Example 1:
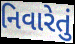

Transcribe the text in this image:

નિવારેતું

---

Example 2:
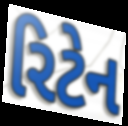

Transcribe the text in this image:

રિટેન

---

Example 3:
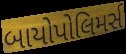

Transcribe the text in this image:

બાયોપોલિમર્સ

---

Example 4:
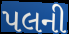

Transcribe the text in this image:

પલની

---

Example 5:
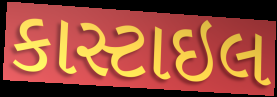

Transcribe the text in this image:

કાસ્ટાઇલ